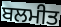
ਬਲਮੀਤ